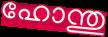
ഹോന്തു